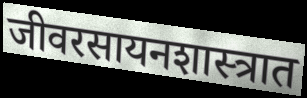
जीवरसायनशास्त्रात